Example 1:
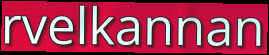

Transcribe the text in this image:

rvelkannan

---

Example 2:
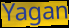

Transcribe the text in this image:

Yagan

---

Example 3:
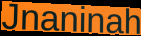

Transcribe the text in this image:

Jnaninah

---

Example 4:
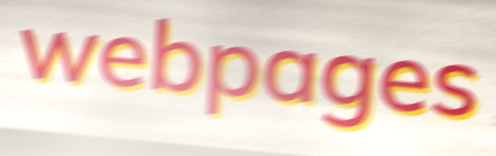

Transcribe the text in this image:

webpages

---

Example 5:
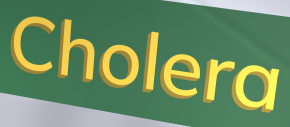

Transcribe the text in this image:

Cholera